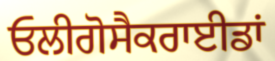
ਓਲੀਗੋਸੈਕਰਾਈਡਾਂ